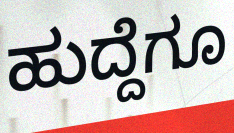
ಹುದ್ದೆಗೂ